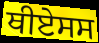
ਥੀਏਸਸ